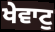
ਖੇਵਾਟੁ